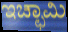
ಇಚ್ಛಾಮಿ